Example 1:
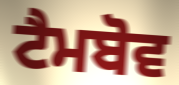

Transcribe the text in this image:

ਟੈਮਬੋਵ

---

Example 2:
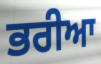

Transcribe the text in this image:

ਭਰੀਆ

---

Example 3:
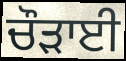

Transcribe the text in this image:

ਚੌੜਾਈ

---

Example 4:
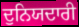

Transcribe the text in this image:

ਦੁਨਿਯਦਾਰੀ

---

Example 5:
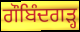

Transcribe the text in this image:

ਗੌਬਿੰਦਗੜ੍ਹ